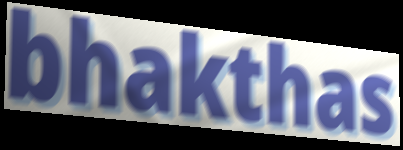
bhakthas